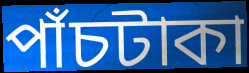
পাঁচটাকা